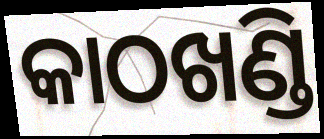
କାଠଖଣ୍ଡି